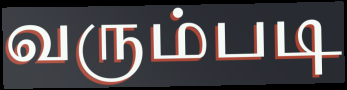
வரும்படி